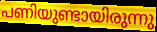
പണിയുണ്ടായിരുന്നു